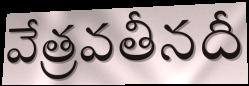
వేత్రవతీనదీ